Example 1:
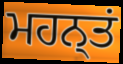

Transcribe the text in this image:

ਮਹਨ੍ਤਂ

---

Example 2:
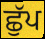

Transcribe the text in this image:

ਛੁੱਪ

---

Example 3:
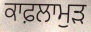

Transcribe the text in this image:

ਕਾਫ਼ਲਾਮੁੜ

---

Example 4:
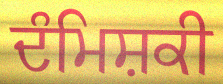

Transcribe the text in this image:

ਦੰਮਿਸ਼ਕੀ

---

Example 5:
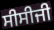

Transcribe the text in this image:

ਸੀਸੀਜੀ